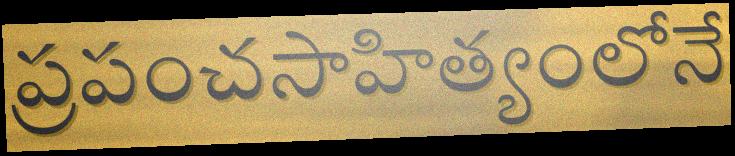
ప్రపంచసాహిత్యంలోనే